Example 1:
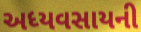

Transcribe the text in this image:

અધ્યવસાયની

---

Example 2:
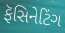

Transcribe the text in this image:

ફૅસિનેટિંગ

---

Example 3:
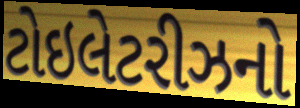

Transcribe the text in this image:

ટોઇલેટરીઝનો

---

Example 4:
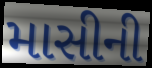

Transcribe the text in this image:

માસીની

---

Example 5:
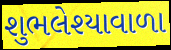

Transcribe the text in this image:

શુભલેશ્યાવાળા